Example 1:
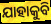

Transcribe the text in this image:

ଯାହାକୁବି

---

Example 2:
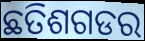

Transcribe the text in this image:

ଛତିଶଗଡର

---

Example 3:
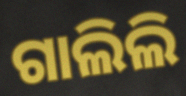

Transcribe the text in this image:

ଗାଲିଲି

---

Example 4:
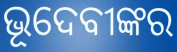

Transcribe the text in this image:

ଭୂଦେବୀଙ୍କର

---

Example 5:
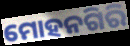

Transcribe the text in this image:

ମୋହନଗିରି